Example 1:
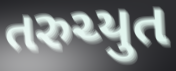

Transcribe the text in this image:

તરુચ્યુત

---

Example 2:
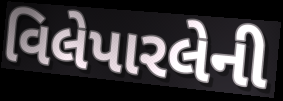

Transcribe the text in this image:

વિલેપારલેની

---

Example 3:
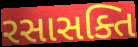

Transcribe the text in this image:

રસાસક્તિ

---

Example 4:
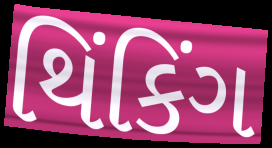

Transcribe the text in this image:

થિંકિંગ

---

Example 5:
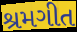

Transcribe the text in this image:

શ્રમગીત